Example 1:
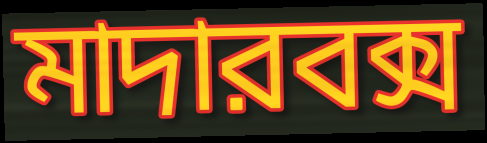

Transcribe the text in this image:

মাদারবক্স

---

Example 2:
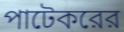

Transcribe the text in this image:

পাটেকরের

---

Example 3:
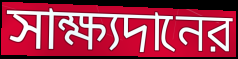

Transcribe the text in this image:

সাক্ষ্যদানের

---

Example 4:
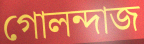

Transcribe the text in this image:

গোলন্দাজ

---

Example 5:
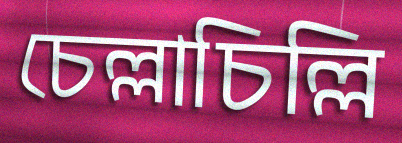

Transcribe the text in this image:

চেল্লাচিল্লি